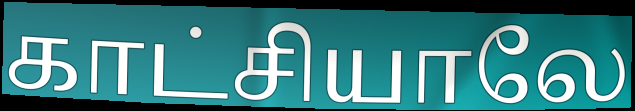
காட்சியாலே